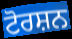
ਟੋਰਸ਼ਨ